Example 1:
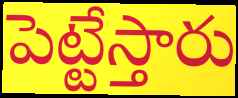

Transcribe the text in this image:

పెట్టేస్తారు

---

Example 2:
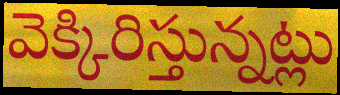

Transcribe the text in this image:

వెక్కిరిస్తున్నట్లు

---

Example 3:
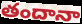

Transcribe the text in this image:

తందానా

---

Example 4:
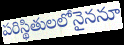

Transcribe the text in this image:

పరిస్థితులలోనైననూ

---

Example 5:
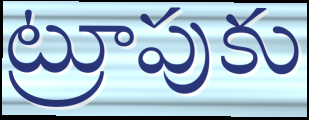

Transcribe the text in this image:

ట్రూపుకు